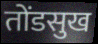
तोंडसुख